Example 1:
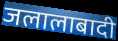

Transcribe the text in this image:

जलालाबादी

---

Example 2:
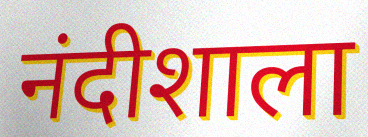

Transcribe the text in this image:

नंदीशाला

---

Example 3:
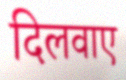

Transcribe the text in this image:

दिलवाए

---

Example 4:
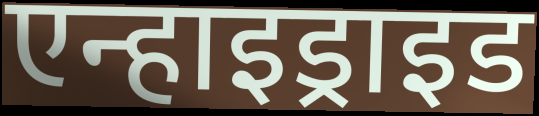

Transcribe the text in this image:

एन्हाइड्राइड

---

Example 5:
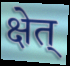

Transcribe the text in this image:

क्षेत्